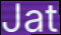
Jat